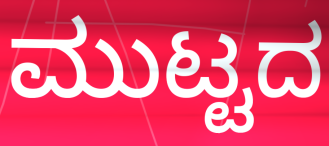
ಮುಟ್ಟದ